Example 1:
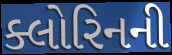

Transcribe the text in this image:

ક્લોરિનની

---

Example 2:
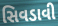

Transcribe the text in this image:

સિવડાવી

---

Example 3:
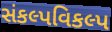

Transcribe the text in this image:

સંકલ્પવિકલ્પ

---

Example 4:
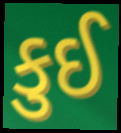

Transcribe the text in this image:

કુઈ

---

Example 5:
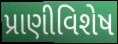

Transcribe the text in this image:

પ્રાણીવિશેષ